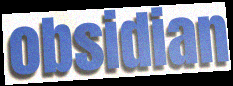
obsidian